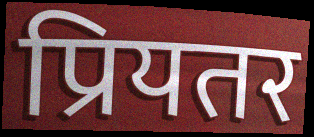
प्रियतर